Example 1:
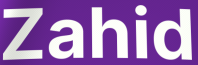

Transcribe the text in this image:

Zahid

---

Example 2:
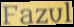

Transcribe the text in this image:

Fazul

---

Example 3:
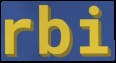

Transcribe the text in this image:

rbi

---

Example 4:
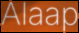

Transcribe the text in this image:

Alaap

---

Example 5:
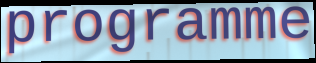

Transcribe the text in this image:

programme